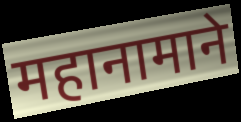
महानामाने